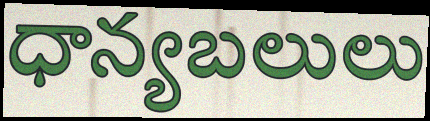
ధాన్యబలులు